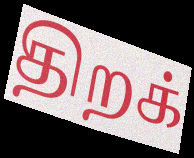
திறக்